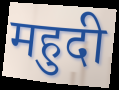
महुदी